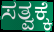
ಸತ್ವಕ್ಕೆ